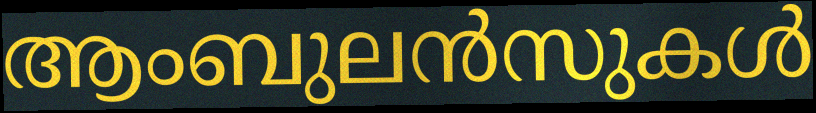
ആംബുലൻസുകൾ